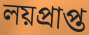
লয়প্রাপ্ত